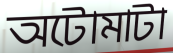
অটোমাটা